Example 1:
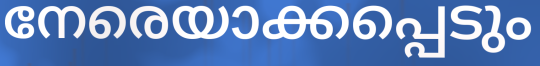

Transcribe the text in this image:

നേരെയാക്കപ്പെടും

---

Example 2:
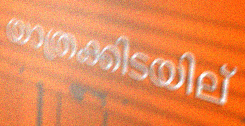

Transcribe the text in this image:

യാത്രക്കിടയില്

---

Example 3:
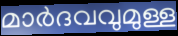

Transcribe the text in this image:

മാർദവവുമുള്ള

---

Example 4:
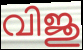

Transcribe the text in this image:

വിജു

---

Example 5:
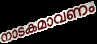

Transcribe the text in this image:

നാടകമാവണം